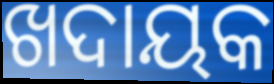
ଖଦାୟକ